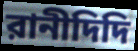
রানীদিদি